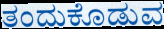
ತಂದುಕೊಡುವ